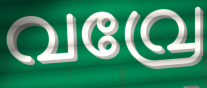
വവ്രേ